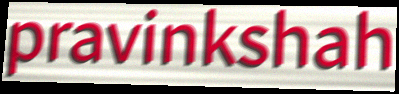
pravinkshah